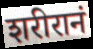
शरीरानं